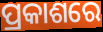
ପ୍ରକାଶରେ